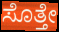
ಸೊತ್ತೇ